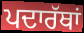
ਪਦਾਰੱਥਾਂ